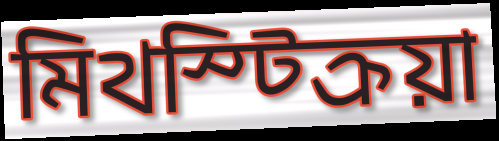
মিথস্ট্ক্রিয়া